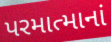
પરમાત્માનાં